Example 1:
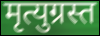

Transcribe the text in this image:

मृत्युग्रस्त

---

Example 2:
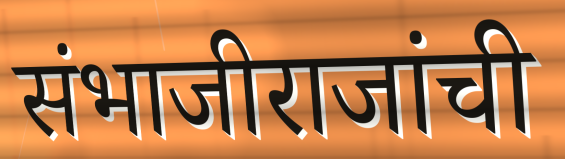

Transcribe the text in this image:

संभाजीराजांची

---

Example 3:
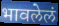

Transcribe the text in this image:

भावलेलं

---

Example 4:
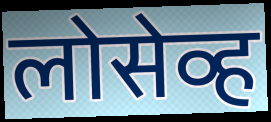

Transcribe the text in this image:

लोसेव्ह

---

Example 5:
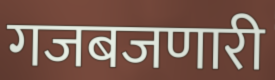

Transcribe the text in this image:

गजबजणारी